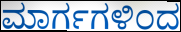
ಮಾರ್ಗಗಳಿಂದ